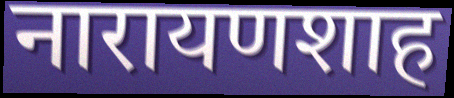
नारायणशाह